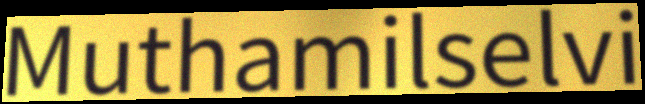
Muthamilselvi